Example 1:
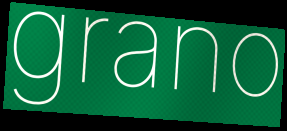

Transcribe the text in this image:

grano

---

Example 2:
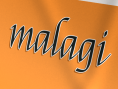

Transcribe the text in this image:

malagi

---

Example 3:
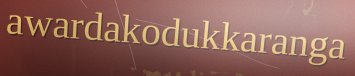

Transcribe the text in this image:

awardakodukkaranga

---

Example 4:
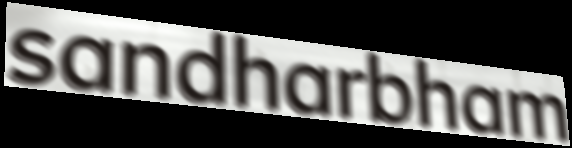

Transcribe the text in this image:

sandharbham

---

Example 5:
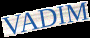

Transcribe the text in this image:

VADIM